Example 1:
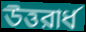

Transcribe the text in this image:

উত্তরার্ধ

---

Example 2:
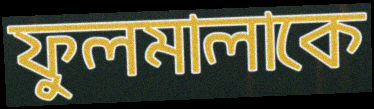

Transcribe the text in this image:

ফুলমালাকে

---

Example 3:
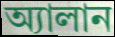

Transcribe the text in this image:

অ্যালান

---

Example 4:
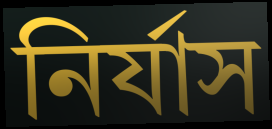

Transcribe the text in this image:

নির্যাস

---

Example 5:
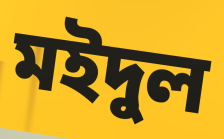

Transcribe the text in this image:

মইদুল